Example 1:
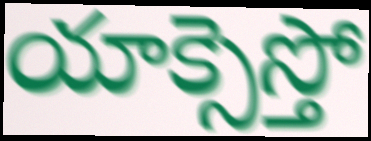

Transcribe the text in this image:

యాక్సెస్తో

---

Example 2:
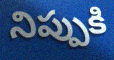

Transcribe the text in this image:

నిప్పుకి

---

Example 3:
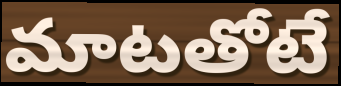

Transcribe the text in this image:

మాటతోటే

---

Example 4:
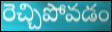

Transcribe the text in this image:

రెచ్చిపోవడం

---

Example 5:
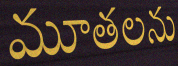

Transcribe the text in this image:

మూతలను